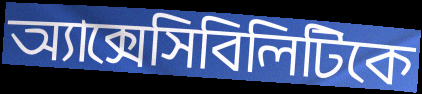
অ্যাক্সেসিবিলিটিকে